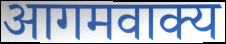
आगमवाक्य